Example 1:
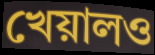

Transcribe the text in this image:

খেয়ালও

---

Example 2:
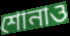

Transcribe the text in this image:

শোনাও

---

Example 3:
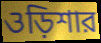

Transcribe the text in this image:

ওড়িশার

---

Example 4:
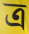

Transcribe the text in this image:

ত্র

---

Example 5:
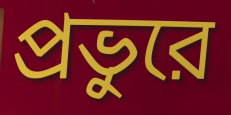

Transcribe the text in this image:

প্রভুরে